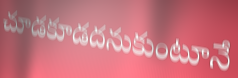
చూడకూడదనుకుంటూనే